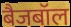
बैजबॉल